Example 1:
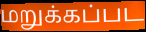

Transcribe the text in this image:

மறுக்கப்பட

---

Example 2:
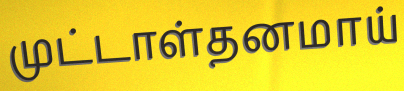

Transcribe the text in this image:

முட்டாள்தனமாய்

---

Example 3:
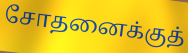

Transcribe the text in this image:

சோதனைக்குத்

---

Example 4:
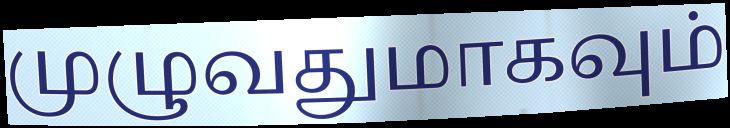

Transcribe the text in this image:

முழுவதுமாகவும்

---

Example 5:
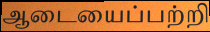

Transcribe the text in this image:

ஆடையைப்பற்றி